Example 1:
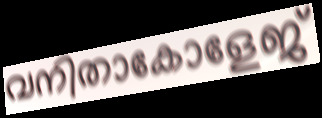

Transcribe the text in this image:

വനിതാകോളേജ്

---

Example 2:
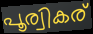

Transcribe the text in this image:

പൂര്വികര്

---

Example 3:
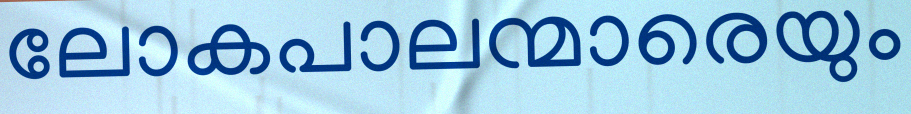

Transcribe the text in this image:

ലോകപാലന്മാരെയും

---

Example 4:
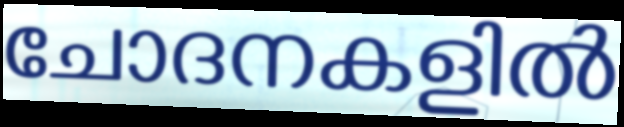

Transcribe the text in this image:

ചോദനകളിൽ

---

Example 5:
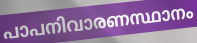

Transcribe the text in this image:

പാപനിവാരണസ്ഥാനം